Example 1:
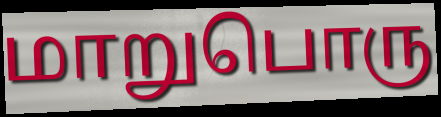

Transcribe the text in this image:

மாறுபொரு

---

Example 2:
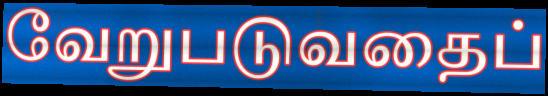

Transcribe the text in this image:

வேறுபடுவதைப்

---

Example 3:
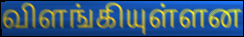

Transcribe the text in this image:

விளங்கியுள்ளன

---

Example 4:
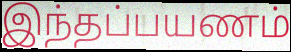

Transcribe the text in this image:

இந்தப்பயணம்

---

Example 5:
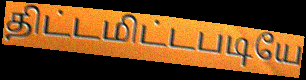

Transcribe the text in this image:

திட்டமிட்டபடியே